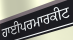
ਹਾਈਪਰਮਾਰਕੀਟ